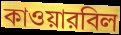
কাওয়ারবিল